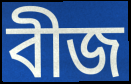
বীজ